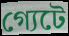
গ্যেটে